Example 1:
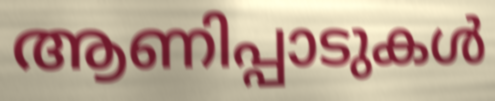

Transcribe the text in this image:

ആണിപ്പാടുകൾ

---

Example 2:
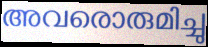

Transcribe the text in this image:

അവരൊരുമിച്ചു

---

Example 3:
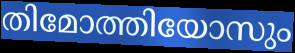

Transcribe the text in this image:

തിമോത്തിയോസും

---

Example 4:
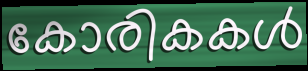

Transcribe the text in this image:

കോരികകൾ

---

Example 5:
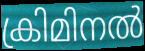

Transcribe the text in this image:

ക്രിമിനൽ